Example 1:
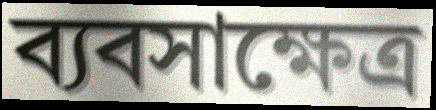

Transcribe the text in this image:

ব্যবসাক্ষেত্র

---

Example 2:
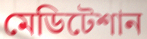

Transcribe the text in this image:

মেডিটেশান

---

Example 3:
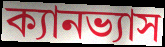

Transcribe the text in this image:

ক্যানভ্যাস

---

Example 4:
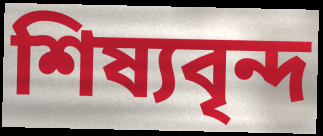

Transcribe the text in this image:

শিষ্যবৃন্দ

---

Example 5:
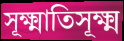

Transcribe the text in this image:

সূক্ষ্মাতিসূক্ষ্ম